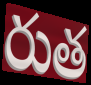
రుత